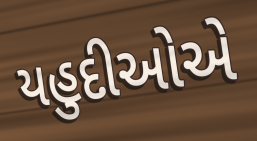
યહુદીઓએ